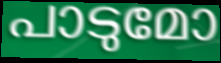
പാടുമോ